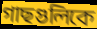
গাছগুলিকে